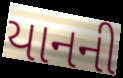
યાનની